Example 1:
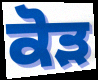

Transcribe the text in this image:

ਕੋੜ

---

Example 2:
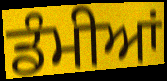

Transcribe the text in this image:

ਡੰਮੀਆਂ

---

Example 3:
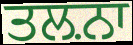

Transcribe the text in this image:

ਤਲ਼ਨਾ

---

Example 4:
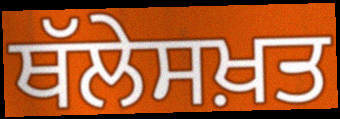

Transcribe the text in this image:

ਥੱਲੇਸਖ਼ਤ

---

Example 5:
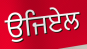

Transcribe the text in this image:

ਉਜਿਏਲ